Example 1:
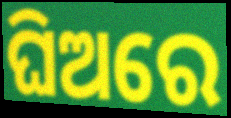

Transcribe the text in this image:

ଘିଅରେ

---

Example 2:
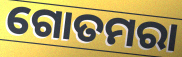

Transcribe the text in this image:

ଗୋତମରା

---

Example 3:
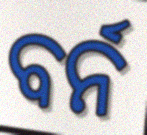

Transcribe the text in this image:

ବର୍ନ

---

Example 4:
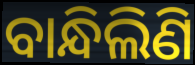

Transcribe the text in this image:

ବାନ୍ଧିଲିଣି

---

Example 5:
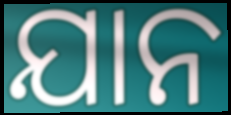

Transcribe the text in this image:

ଯାନ